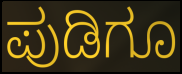
ಪುಡಿಗೂ